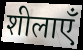
शीलाएँ